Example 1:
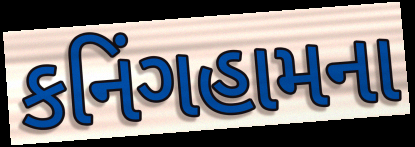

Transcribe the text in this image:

કનિંગહામના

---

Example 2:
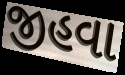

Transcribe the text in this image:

જીહવા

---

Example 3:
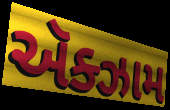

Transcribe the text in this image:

ઍક્ઝામ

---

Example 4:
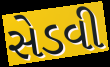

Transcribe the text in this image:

સેડવી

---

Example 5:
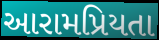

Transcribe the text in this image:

આરામપ્રિયતા